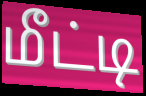
மீட்டி